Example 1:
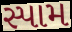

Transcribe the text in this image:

સ્પામ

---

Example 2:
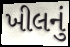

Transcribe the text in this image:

ખીલનું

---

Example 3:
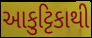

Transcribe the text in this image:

આકુટ્ટિકાથી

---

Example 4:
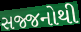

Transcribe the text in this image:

સજ્જનોથી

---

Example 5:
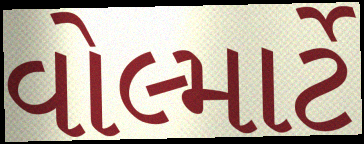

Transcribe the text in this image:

વોલ્માર્ટે